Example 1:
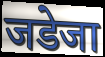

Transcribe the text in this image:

जडेजा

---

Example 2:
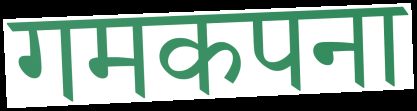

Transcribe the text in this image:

गमकपना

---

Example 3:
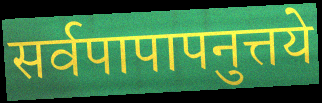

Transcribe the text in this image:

सर्वपापापनुत्तये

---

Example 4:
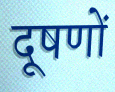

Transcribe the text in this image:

दूषणों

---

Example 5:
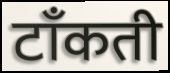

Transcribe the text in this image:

टाँकती